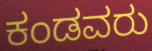
ಕಂಡವರು